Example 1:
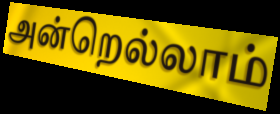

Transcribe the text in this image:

அன்றெல்லாம்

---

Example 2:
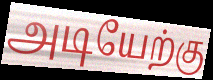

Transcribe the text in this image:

அடியேற்கு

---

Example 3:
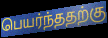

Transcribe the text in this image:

பெயர்ந்ததற்கு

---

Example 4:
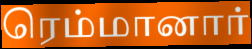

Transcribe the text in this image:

ரெம்மானார்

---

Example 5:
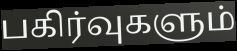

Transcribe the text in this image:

பகிர்வுகளும்